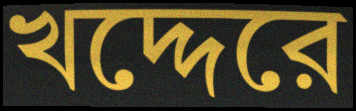
খদ্দেরে